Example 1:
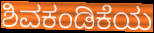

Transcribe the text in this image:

ಶಿವಕಂಡಿಕೆಯ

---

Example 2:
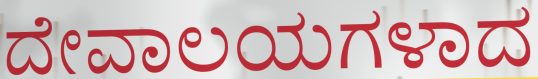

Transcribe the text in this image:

ದೇವಾಲಯಗಳಾದ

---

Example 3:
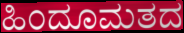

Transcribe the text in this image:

ಹಿಂದೂಮತದ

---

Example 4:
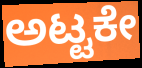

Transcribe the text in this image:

ಅಟ್ಟಕೇ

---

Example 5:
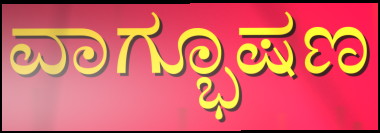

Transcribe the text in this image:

ವಾಗ್ಭೂಷಣ